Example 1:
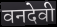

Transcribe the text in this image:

वनदेवी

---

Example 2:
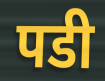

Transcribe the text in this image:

पडी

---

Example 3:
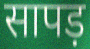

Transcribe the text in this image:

सापड़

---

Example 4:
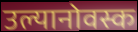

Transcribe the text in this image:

उल्यानोवस्क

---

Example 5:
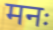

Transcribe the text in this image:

मनः